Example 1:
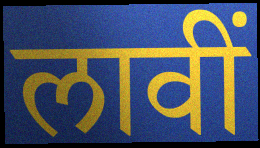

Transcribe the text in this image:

लावीं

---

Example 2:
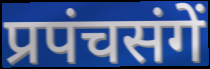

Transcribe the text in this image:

प्रपंचसंगें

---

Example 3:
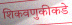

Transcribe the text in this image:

शिकवणुकीकडे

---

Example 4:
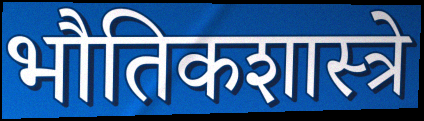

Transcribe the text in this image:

भौतिकशास्त्रे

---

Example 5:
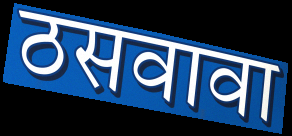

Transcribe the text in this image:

ठसवावा